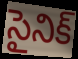
సైనిక్